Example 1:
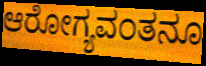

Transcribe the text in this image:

ಆರೋಗ್ಯವಂತನೂ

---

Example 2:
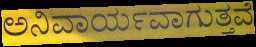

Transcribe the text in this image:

ಅನಿವಾರ್ಯವಾಗುತ್ತವೆ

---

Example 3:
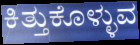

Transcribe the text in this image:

ಕಿತ್ತುಕೊಳ್ಳುವ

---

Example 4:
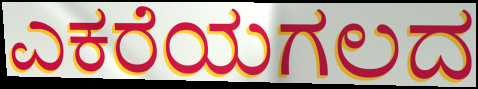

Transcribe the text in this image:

ಎಕರೆಯಗಲದ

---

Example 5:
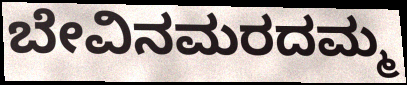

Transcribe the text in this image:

ಬೇವಿನಮರದಮ್ಮ